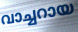
വാച്ചറായ